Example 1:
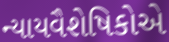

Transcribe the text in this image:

ન્યાયવૈશેષિકોએ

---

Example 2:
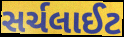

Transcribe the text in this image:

સર્ચલાઈટ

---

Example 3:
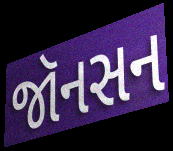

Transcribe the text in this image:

જૉનસન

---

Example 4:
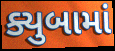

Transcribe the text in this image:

ક્યુબામાં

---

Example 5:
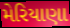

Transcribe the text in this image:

મેરિયાણા